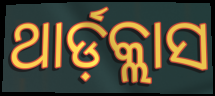
ଥାର୍ଡ଼କ୍ଲାସ